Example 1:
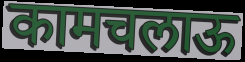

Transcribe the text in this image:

कामचलाऊ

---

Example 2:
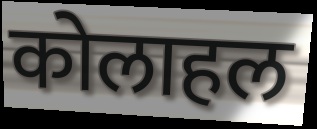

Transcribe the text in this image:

कोलाहल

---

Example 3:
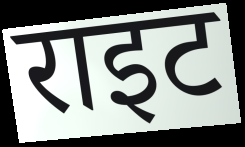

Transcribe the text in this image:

राइट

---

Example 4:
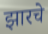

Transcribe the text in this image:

झारचे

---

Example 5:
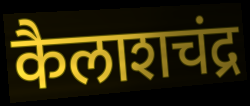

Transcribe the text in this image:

कैलाशचंद्र